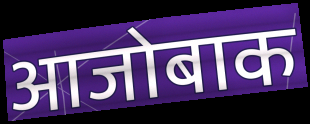
आजोबाक